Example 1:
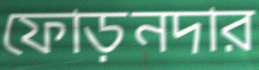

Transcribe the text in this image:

ফোড়নদার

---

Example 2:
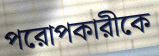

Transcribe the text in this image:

পরোপকারীকে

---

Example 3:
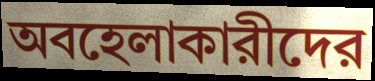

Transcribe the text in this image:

অবহেলাকারীদের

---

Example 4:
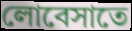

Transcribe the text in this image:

লোবেসাতে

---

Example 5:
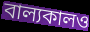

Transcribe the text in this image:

বাল্যকালও